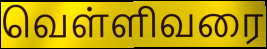
வெள்ளிவரை